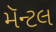
મૅન્ટલ